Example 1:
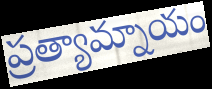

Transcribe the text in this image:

ప్రత్యామ్నాయం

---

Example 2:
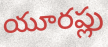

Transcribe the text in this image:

యూరప్లు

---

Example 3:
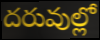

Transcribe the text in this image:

దరువుల్లో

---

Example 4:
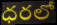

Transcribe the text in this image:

ధరలో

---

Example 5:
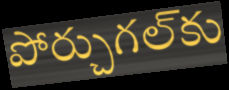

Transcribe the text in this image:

పోర్చుగల్‌కు